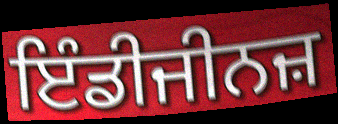
ਇੰਡੀਜੀਨਜ਼